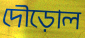
দৌড়োল